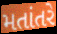
મતાંતરે